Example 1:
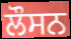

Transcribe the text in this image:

ਲੌਸਨ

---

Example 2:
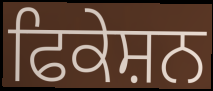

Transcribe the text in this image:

ਫਿਕੇਸ਼ਨ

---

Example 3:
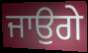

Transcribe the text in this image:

ਜਾਉਗੇ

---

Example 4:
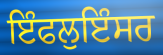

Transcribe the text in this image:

ਇੰਫਲੁਇੰਸਰ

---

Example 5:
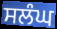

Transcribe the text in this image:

ਸਲੰਘ